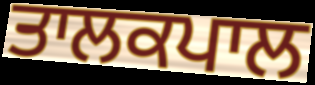
ਤਾਲਕਪਾਲ